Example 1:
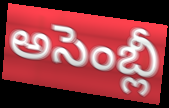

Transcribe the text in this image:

అసెంబ్లీ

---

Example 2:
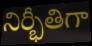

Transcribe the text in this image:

నిర్భీతిగా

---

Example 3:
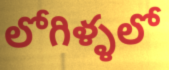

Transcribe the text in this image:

లోగిళ్ళలో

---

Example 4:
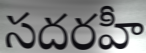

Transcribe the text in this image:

సదరహీ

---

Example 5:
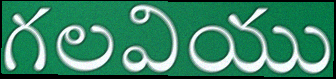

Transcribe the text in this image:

గలవియు